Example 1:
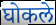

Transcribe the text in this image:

घोकले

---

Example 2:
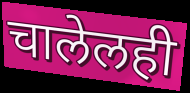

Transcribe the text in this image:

चालेलही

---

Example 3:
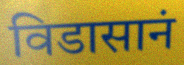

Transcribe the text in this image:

विडासानं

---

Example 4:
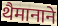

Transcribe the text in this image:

थैमानाने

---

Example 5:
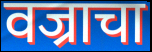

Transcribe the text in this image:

वज्राचा